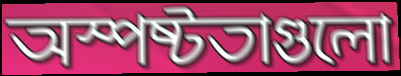
অস্পষ্টতাগুলো